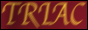
TRIAC